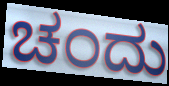
ಚಂದು